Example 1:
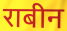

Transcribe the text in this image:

राबीन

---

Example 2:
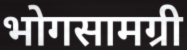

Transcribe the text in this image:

भोगसामग्री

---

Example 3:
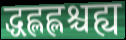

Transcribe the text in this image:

द्धह्लह्लश्चह्य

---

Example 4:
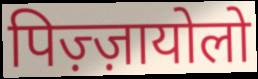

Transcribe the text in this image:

पिज़्ज़ायोलो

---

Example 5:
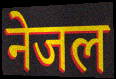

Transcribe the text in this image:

नेजल